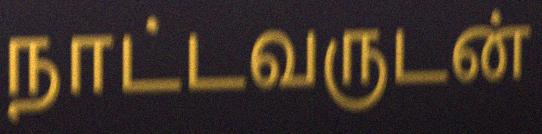
நாட்டவருடன்